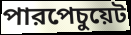
পারপেচুয়েট